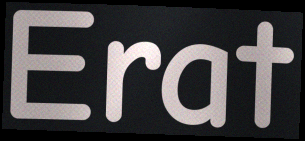
Erat